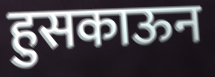
हुसकाऊन